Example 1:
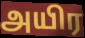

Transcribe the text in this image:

அயிர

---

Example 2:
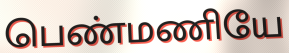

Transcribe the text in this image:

பெண்மணியே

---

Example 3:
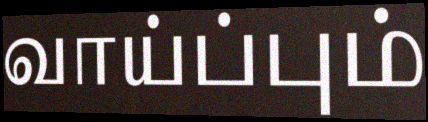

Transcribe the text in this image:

வாய்ப்பும்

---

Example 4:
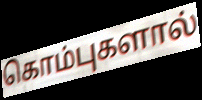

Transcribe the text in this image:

கொம்புகளால்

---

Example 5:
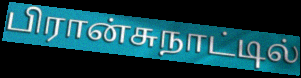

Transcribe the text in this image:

பிரான்சுநாட்டில்